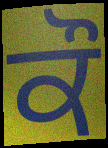
ਕੌ